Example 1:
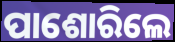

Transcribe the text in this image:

ପାଶୋରିଲେ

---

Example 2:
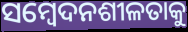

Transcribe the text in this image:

ସମ୍ବେଦନଶୀଳତାକୁ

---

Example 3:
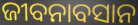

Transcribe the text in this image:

ଜୀବନାବସାନ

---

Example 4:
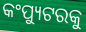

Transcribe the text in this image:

କଂପ୍ୟୁଟରକୁ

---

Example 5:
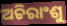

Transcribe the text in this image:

ଅଚିରାଂଶୁ